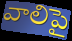
వాలిపై